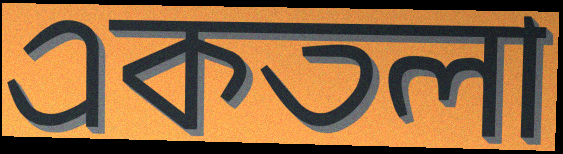
একতলা